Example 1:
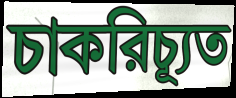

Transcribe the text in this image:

চাকরিচ্যূত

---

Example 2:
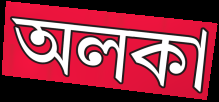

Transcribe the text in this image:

অলকা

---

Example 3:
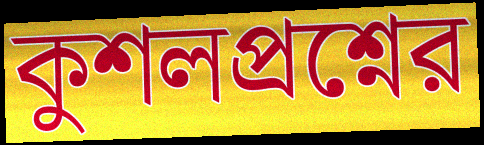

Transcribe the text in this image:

কুশলপ্রশ্নের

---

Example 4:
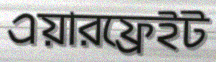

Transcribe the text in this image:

এয়ারফ্রেইট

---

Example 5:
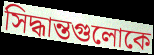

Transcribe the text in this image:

সিদ্ধান্তগুলোকে